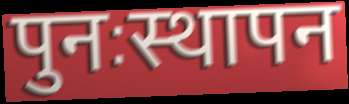
पुनःस्थापन